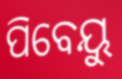
ପିବେୟୁ